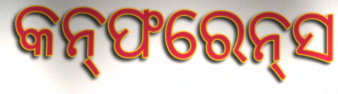
କନ୍‌ଫରେନ୍‌ସ